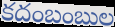
కదంబంబుల